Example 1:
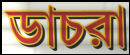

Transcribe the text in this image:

ডাচরা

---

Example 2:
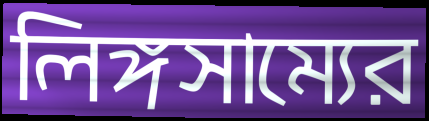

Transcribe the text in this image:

লিঙ্গসাম্যের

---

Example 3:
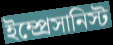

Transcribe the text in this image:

ইম্প্রেসানিস্ট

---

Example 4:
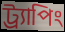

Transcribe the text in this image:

ট্র্যাপিং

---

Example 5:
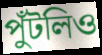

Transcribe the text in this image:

পুঁটলিও